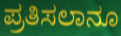
ಪ್ರತಿಸಲಾನೂ